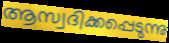
ആസ്വദിക്കപ്പെടുന്നു